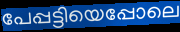
പേപ്പട്ടിയെപ്പോലെ